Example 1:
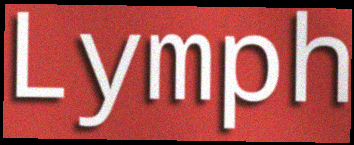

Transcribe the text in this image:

Lymph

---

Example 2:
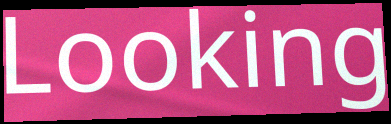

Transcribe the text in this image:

Looking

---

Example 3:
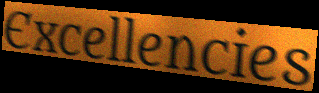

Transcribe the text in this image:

Excellencies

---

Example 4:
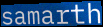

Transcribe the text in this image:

samarth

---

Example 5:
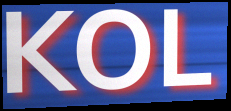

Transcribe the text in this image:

KOL